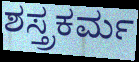
ಶಸ್ತ್ರಕರ್ಮ